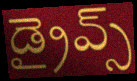
డ్రైవ్స్